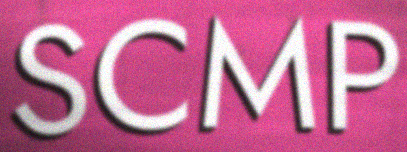
SCMP